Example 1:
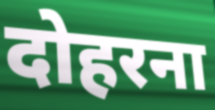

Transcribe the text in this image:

दोहरना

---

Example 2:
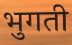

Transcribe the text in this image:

भुगती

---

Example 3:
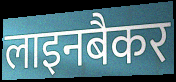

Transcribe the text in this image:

लाइनबैकर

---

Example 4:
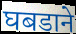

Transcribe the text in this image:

घबडाने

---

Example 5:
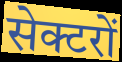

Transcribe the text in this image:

सेक्टरों